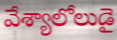
వేశ్యాలోలుడై